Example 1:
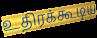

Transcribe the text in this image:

உதிரக்கூடிய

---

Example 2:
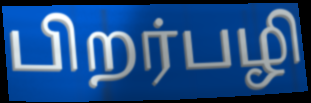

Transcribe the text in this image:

பிறர்பழி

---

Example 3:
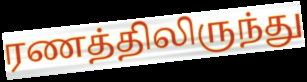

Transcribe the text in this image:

ரணத்திலிருந்து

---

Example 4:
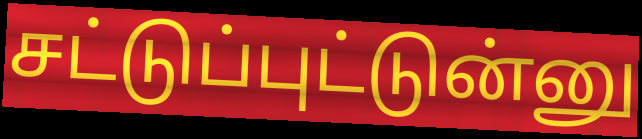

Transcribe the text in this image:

சட்டுப்புட்டுன்னு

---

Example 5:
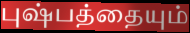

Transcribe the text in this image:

புஷ்பத்தையும்